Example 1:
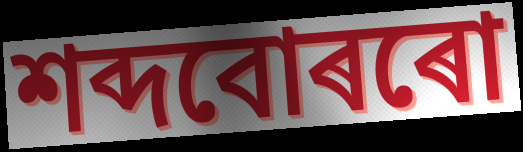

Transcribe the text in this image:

শব্দবোৰৰো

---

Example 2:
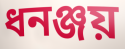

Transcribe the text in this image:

ধনঞ্জয়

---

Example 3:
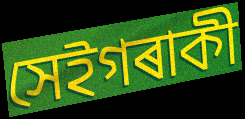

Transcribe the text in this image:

সেইগৰাকী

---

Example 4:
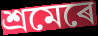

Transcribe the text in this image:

শ্ৰমেৰে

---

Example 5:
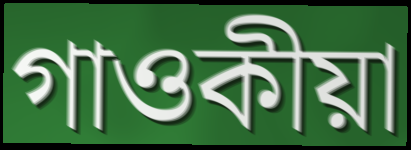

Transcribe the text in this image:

গাওকীয়া